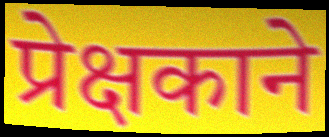
प्रेक्षकाने